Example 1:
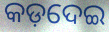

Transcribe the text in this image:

କଡ଼ଦେଇ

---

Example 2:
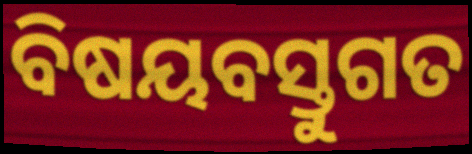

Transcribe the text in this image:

ବିଷୟବସ୍ତୁଗତ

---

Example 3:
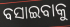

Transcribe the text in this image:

ବସାଇବାକୁ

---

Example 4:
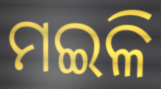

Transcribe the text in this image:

ମଇଳି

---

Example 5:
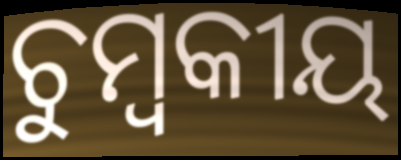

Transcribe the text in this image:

ଚୁମ୍ବକୀୟ